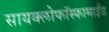
सायक्लोफॉस्फामाईड